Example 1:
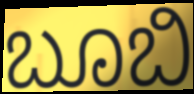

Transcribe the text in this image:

ಬೂಬಿ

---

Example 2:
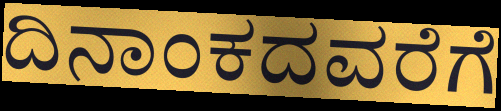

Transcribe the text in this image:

ದಿನಾಂಕದವರೆಗೆ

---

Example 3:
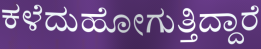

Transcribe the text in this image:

ಕಳೆದುಹೋಗುತ್ತಿದ್ದಾರೆ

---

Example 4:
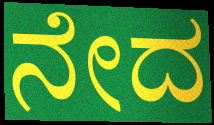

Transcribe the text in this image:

ನೇದ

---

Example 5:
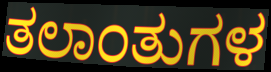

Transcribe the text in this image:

ತಲಾಂತುಗಳ